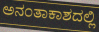
ಅನಂತಾಕಾಶದಲ್ಲಿ